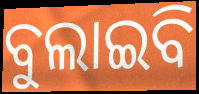
ବୁଲାଇବି